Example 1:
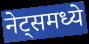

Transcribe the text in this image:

नेट्समध्ये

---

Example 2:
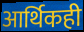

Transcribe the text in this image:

आर्थिकही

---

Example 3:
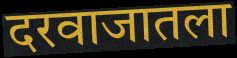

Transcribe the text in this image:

दरवाजातला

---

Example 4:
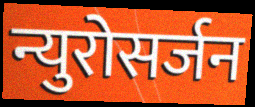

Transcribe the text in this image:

न्युरोसर्जन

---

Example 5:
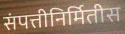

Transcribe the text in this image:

संपत्तीनिर्मितीस